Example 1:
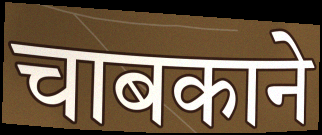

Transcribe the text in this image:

चाबकाने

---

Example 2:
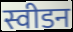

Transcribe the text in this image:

स्वीडन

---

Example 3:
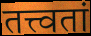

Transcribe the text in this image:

तत्त्वतां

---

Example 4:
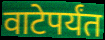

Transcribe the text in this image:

वाटेपर्यंत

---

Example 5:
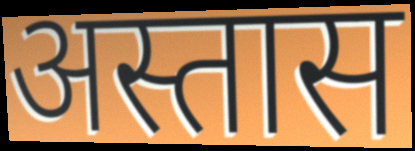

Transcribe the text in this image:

अस्तास